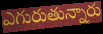
ఎగురుతున్నారు